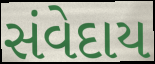
સંવેદાય